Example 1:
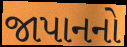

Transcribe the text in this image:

જાપાનનો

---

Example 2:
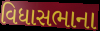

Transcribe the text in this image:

વિધાસભાના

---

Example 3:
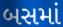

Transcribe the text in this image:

બસમાં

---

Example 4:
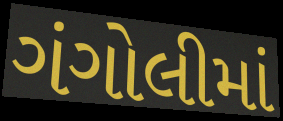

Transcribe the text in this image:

ગંગોલીમાં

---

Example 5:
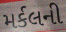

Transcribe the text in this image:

મર્કલની